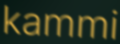
kammi